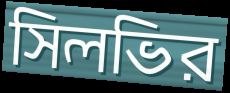
সিলভির